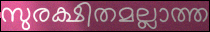
സുരക്ഷിതമല്ലാത്ത